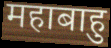
महाबाहु